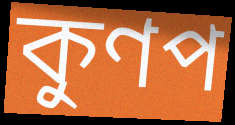
কুণপ